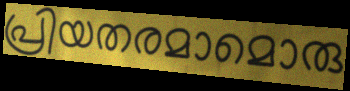
പ്രിയതരമാമൊരു